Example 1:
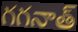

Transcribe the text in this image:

గగనాత్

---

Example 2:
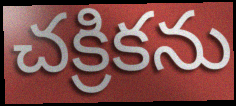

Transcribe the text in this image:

చక్రికను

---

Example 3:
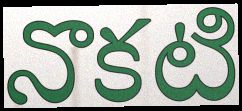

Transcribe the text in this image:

నొకటి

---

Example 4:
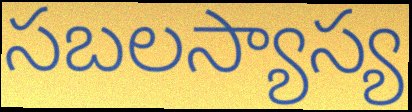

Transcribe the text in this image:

సబలస్యాస్య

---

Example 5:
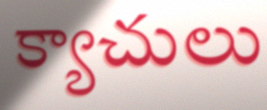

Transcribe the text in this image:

క్యాచులు